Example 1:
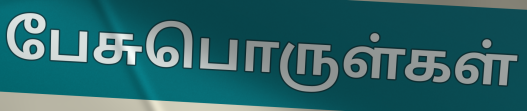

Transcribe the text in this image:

பேசுபொருள்கள்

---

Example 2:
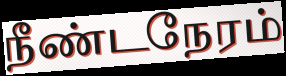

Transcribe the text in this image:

நீண்டநேரம்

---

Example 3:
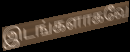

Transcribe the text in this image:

இடங்களாகவே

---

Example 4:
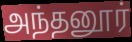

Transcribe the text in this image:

அந்தனூர்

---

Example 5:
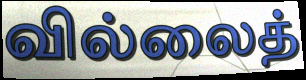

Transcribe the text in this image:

வில்லைத்